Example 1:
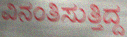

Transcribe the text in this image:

ವಿನಂತಿಸುತ್ತಿದ್ದ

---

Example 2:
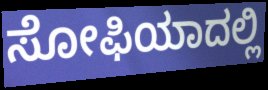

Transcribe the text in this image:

ಸೋಫಿಯಾದಲ್ಲಿ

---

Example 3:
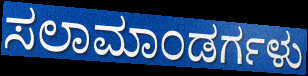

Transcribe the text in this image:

ಸಲಾಮಾಂಡರ್ಗಳು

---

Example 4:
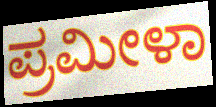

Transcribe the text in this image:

ಪ್ರಮೀಳಾ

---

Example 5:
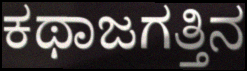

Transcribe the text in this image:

ಕಥಾಜಗತ್ತಿನ